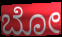
ಬೋ